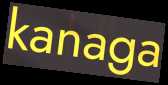
kanaga